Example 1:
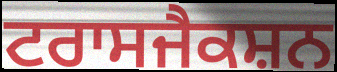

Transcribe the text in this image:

ਟਰਾਸਜੈਕਸ਼ਨ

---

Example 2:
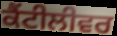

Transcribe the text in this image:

ਕੈਂਟੀਲੀਵਰ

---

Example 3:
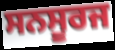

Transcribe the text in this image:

ਸਨਸੂਰਜ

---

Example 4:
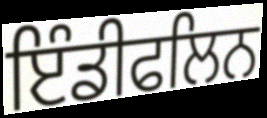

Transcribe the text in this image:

ਇੰਡੀਫਲਿਨ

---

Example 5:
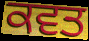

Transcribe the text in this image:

ਕਵਤ